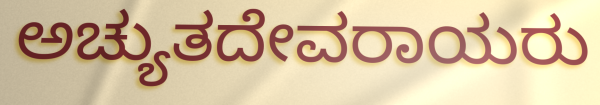
ಅಚ್ಯುತದೇವರಾಯರು